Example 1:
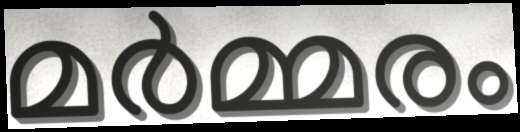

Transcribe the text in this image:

മർമ്മരം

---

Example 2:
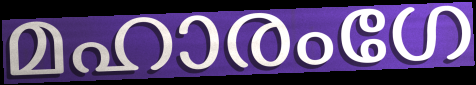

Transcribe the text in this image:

മഹാരംഗേ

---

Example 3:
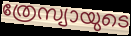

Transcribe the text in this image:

ത്രേസ്യായുടെ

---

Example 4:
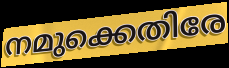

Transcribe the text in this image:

നമുക്കെതിരേ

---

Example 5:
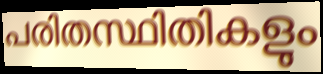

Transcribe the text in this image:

പരിതസ്ഥിതികളും